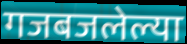
गजबजलेल्या